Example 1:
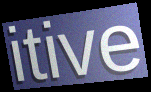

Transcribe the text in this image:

itive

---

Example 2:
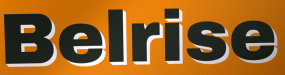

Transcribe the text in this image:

Belrise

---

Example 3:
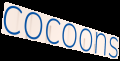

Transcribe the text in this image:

cocoons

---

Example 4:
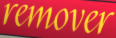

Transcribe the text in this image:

remover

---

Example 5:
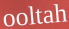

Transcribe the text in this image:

ooltah